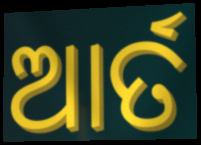
ଆର୍ତ